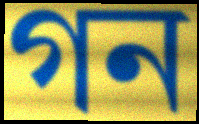
গন